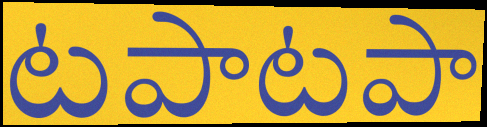
టపాటపా